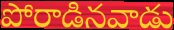
పోరాడినవాడు